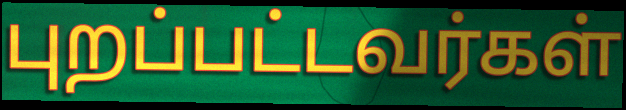
புறப்பட்டவர்கள்